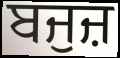
ਬਜੁਜ਼